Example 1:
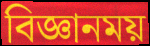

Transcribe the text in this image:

বিজ্ঞানময়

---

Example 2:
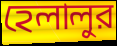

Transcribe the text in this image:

হেলালুর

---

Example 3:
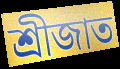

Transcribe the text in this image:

শ্রীজাত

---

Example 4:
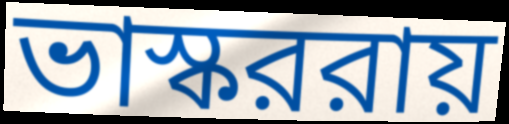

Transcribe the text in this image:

ভাস্কররায়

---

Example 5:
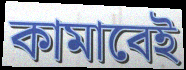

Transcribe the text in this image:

কামাবেই